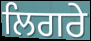
ਲਿਗਰੇ